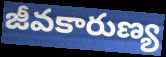
జీవకారుణ్య